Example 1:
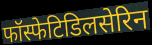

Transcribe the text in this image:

फॉस्फेटिडिलसेरिन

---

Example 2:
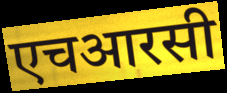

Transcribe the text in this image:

एचआरसी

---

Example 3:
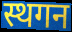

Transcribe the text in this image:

स्थगन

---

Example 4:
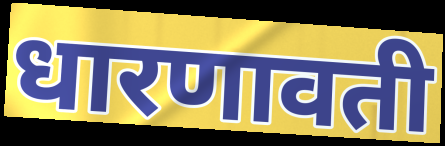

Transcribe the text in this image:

धारणावती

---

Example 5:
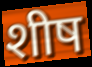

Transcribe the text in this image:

शीष